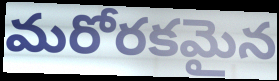
మరోరకమైన